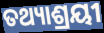
ତଥ୍ୟାଶ୍ରୟୀ